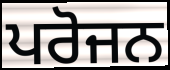
ਪਰੋਜਨ